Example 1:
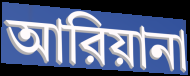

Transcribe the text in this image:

আরিয়ানা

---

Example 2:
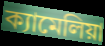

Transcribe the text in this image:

ক্যামেলিয়া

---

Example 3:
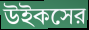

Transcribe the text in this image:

উইকসের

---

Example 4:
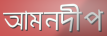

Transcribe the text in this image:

আমনদীপ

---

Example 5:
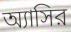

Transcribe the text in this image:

অ্যাসির